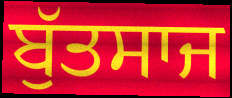
ਬੁੱਤਸਾਜ